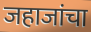
जहाजांचा